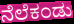
ನೆಲೆಕಂಡು